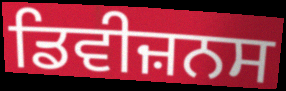
ਡਿਵੀਜ਼ਨਸ